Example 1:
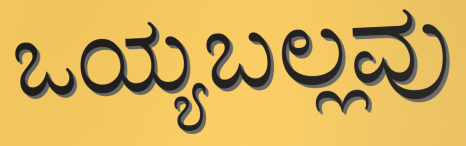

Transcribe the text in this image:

ಒಯ್ಯಬಲ್ಲವು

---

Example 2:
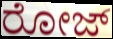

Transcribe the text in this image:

ರೋಜ್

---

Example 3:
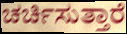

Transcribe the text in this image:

ಚರ್ಚಿಸುತ್ತಾರೆ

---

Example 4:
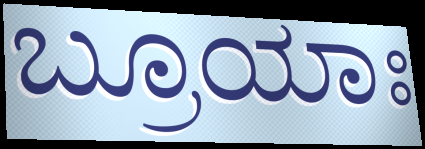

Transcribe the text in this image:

ಬ್ರೂಯಾಃ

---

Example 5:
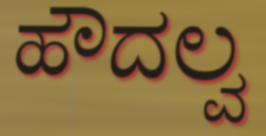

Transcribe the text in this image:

ಹೌದಲ್ವ